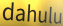
dahulu